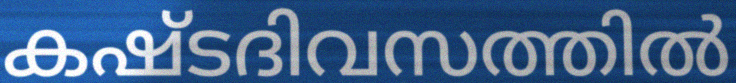
കഷ്ടദിവസത്തിൽ